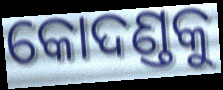
କୋଦଣ୍ଡକୁ